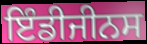
ਇੰਡੀਜੀਨਸ